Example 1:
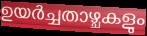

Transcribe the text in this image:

ഉയർച്ചതാഴ്ചകളും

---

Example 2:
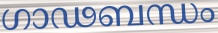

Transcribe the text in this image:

ഗാഢബന്ധം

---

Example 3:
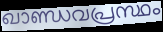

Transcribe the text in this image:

ഖാണ്ഡവപ്രസ്ഥം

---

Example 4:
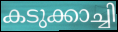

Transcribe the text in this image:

കടുക്കാച്ചി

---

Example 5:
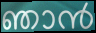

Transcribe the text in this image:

ഞാൻ